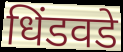
धिंडवडे